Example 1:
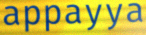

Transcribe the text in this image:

appayya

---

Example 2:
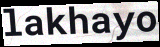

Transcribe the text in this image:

lakhayo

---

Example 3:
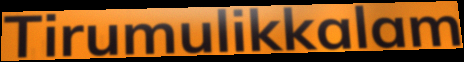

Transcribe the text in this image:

Tirumulikkalam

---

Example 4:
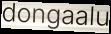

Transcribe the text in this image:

dongaalu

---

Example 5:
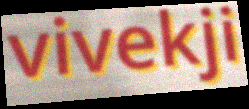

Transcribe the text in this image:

vivekji